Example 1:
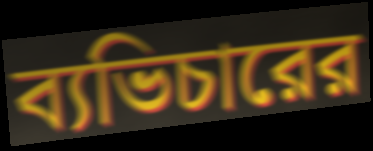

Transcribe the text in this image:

ব্যভিচারের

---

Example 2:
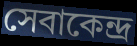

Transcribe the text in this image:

সেবাকেন্দ্র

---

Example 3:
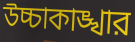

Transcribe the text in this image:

উচ্চাকাঙ্খার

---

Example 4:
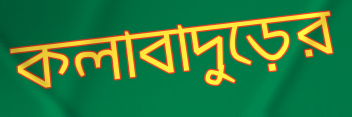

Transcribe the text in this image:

কলাবাদুড়ের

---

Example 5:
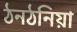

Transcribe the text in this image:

ঠনঠনিয়া